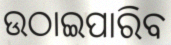
ଉଠାଇପାରିବ